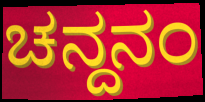
ಚನ್ದನಂ